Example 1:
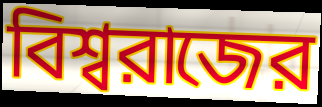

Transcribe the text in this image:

বিশ্বরাজের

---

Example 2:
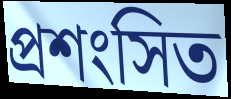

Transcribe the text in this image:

প্রশংসিত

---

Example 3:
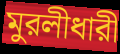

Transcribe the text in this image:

মুরলীধারী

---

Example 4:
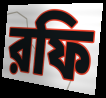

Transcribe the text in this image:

রফি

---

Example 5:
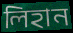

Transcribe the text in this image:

লিহান